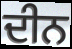
ਦੀਨ